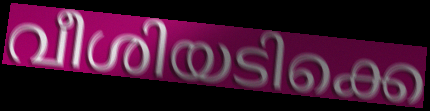
വീശിയടിക്കെ